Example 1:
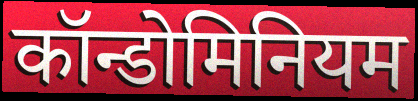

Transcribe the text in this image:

कॉन्डोमिनियम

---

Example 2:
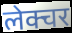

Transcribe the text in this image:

लेक्चर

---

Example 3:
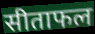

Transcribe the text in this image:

सीताफल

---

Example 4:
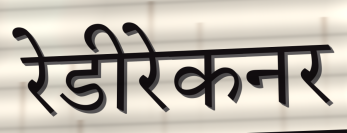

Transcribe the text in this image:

रेडीरेकनर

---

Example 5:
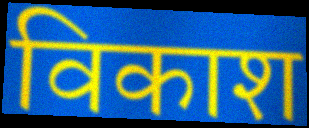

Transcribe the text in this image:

विकाश